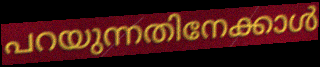
പറയുന്നതിനേക്കാൾ